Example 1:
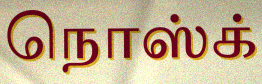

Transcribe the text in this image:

நொஸ்க்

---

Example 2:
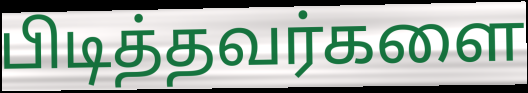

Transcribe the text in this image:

பிடித்தவர்களை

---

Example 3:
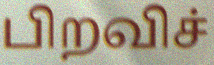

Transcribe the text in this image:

பிறவிச்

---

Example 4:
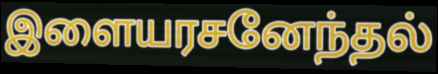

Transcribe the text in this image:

இளையரசனேந்தல்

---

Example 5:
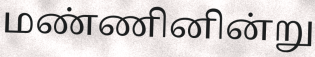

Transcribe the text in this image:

மண்ணினின்று